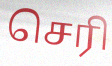
செரி